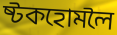
ষ্টকহোমলৈ